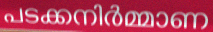
പടക്കനിർമ്മാണ